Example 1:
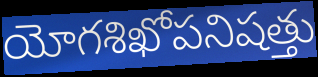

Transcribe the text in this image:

యోగశిఖోపనిషత్తు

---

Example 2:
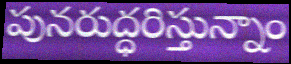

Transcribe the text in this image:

పునరుద్ధరిస్తున్నాం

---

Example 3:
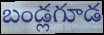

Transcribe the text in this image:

బండ్లగూడ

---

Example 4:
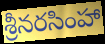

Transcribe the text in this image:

శ్రీనరసింహా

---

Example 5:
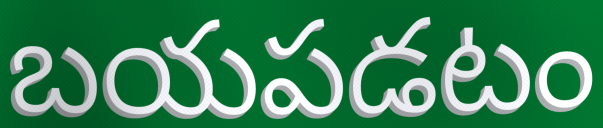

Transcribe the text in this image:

బయపడటం